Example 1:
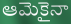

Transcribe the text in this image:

ఆమెకైనా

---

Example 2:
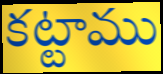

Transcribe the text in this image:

కట్టాము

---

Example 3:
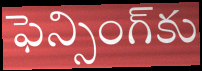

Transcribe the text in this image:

ఫెన్సింగ్‌కు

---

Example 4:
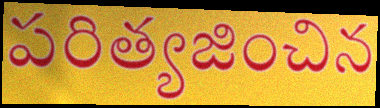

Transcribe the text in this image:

పరిత్యజించిన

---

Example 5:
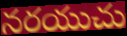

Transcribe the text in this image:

నరయుచు